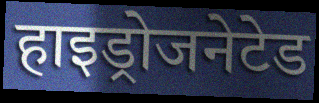
हाइड्रोजनेटेड